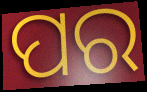
ପର